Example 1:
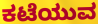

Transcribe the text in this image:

ಕಟೆಯುವ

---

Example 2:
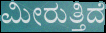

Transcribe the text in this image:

ಮೀರುತ್ತಿದೆ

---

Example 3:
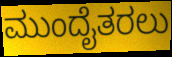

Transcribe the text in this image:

ಮುಂದೈತರಲು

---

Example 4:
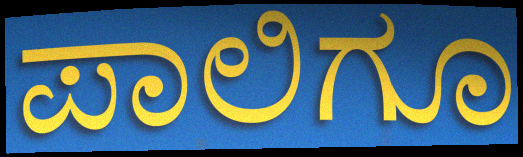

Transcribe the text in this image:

ಪಾಲಿಗೂ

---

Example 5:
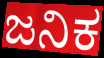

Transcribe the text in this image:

ಜನಿಕ